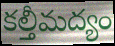
కల్తీమద్యం